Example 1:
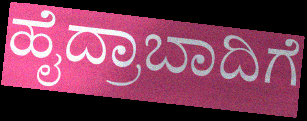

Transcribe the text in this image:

ಹೈದ್ರಾಬಾದಿಗೆ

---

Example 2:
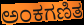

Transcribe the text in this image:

ಅಂಕಗಣಿತ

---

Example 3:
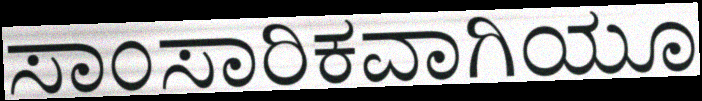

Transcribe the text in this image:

ಸಾಂಸಾರಿಕವಾಗಿಯೂ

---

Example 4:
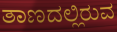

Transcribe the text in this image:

ತಾಣದಲ್ಲಿರುವ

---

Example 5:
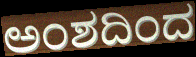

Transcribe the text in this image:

ಅಂಶದಿಂದ